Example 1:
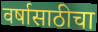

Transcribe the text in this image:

वर्षासाठीचा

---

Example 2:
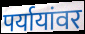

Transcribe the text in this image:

पर्यायांवर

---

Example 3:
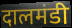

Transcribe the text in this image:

दालमंडी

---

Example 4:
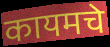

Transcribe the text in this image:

कायमचे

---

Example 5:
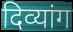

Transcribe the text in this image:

दिव्यांग